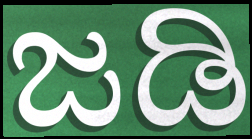
ಜಡಿ